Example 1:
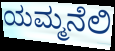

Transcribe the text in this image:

ಯಮ್ಮನೆಲಿ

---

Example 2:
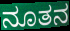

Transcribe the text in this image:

ನೂತನ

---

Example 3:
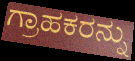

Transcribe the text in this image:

ಗ್ರಾಹಕರನ್ನು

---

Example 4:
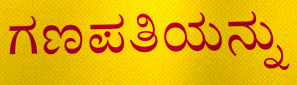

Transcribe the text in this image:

ಗಣಪತಿಯನ್ನು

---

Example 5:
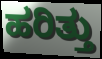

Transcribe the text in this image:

ಹರಿತ್ತು